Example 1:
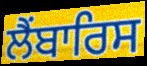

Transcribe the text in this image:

ਲੈਂਬਾਰਿਸ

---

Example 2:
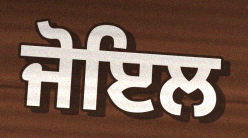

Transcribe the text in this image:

ਜੋਇਲ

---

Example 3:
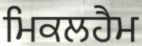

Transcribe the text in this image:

ਮਿਕਲਹੈਮ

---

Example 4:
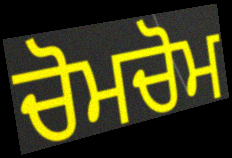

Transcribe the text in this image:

ਚੋਮਚੋਮ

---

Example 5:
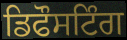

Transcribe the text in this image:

ਡਿਫੌਸਟਿੰਗ